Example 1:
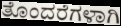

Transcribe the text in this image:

ತೊಂದರೆಗಳಾಗಿ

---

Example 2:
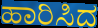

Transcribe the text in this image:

ಹಾರಿಸಿದ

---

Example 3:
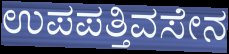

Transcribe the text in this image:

ಉಪಪತ್ತಿವಸೇನ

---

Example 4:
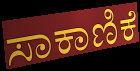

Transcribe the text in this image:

ಸಾಕಾಣಿಕೆ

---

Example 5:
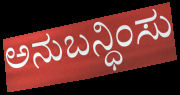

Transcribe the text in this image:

ಅನುಬನ್ಧಿಂಸು